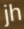
jh